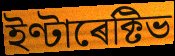
ইণ্টাৰেক্টিভ